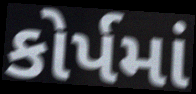
કોર્પમાં